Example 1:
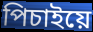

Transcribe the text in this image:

পিচাইয়ে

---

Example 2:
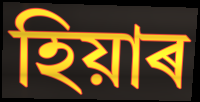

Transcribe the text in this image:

হিয়াৰ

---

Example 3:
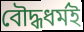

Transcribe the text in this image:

বৌদ্ধধৰ্মই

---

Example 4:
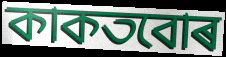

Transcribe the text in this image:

কাকতবোৰ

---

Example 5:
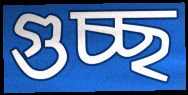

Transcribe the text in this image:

গুচ্ছ